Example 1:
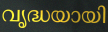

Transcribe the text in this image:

വൃദ്ധയായി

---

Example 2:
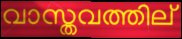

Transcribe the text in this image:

വാസ്തവത്തില്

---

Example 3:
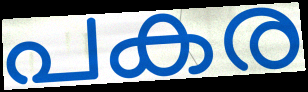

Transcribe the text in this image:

പകര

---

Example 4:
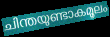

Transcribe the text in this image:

ചിന്തയുണ്ടാകമൂലം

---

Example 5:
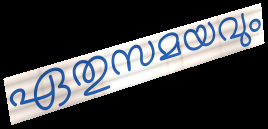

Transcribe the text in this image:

ഏതുസമയവും